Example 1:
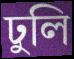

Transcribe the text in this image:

ঢুলি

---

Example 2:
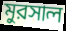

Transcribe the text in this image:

মুরসাল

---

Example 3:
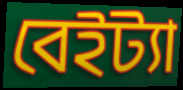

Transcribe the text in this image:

বেইট্যা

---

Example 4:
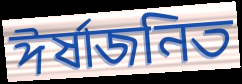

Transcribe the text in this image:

ঈর্ষাজনিত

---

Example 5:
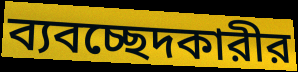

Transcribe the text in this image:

ব্যবচ্ছেদকারীর